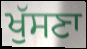
ਖੁੱਸਣਾ